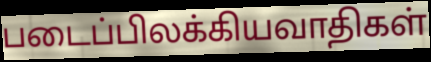
படைப்பிலக்கியவாதிகள்